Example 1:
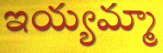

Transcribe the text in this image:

ఇయ్యమ్మా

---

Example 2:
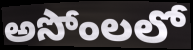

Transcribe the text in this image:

అసోంలలో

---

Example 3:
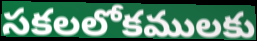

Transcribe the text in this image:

సకలలోకములకు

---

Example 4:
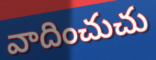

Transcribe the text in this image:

వాదించుచు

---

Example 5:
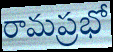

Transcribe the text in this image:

రామప్రభో